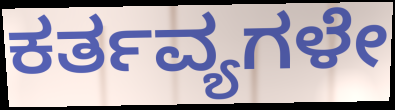
ಕರ್ತವ್ಯಗಳೇ